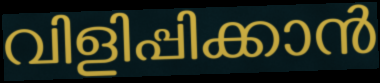
വിളിപ്പിക്കാൻ